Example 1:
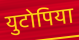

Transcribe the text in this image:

युटोपिया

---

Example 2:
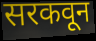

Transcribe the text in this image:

सरकवून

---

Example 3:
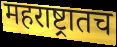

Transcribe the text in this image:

महराष्ट्रातच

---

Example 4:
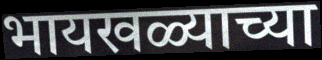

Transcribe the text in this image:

भायखळ्याच्या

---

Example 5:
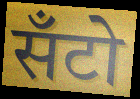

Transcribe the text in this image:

सँटो